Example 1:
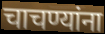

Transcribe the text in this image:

चाचण्यांना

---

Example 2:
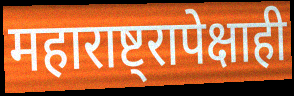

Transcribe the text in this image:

महाराष्ट्रापेक्षाही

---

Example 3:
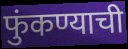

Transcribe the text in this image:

फुंकण्याची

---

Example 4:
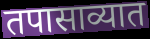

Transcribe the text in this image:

तपासाव्यात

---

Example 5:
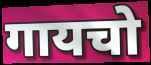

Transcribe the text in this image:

गायचो